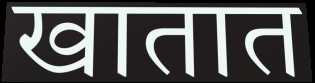
खातात